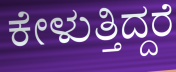
ಕೇಳುತ್ತಿದ್ದರೆ